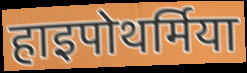
हाइपोथर्मिया